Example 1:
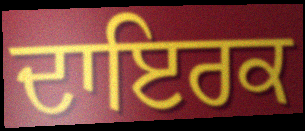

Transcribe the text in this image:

ਦਾਇਰਕ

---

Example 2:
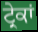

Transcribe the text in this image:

ਟ੍ਰੇਕਾਂ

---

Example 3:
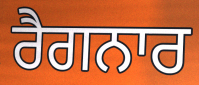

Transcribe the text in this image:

ਰੈਗਨਾਰ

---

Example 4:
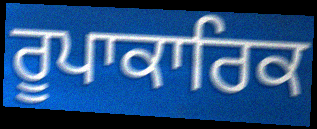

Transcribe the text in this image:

ਰੂਪਾਕਾਰਿਕ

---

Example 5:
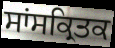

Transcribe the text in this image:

ਸਾਂਸਕ੍ਰਿਤਕ